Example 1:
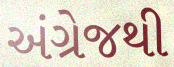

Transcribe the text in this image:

અંગ્રેજથી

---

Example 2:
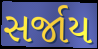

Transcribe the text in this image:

સર્જાય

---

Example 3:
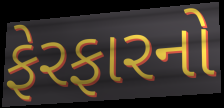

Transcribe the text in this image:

ફેરફારનો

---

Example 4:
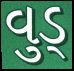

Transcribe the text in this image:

વુડ્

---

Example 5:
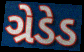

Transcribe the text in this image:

ગ્રેડેડ